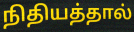
நிதியத்தால்